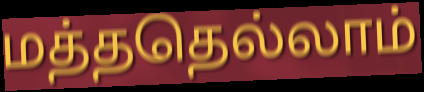
மத்ததெல்லாம்